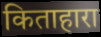
किताहारा